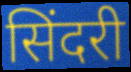
सिंदरी